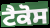
ਟੈਕੋਸ